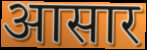
आसार